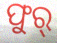
ଫୁର୍